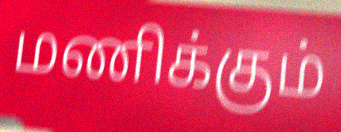
மணிக்கும்